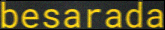
besarada